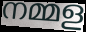
നമ്മള